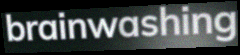
brainwashing